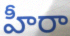
హీరా